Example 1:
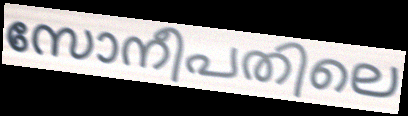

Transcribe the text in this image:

സോനീപതിലെ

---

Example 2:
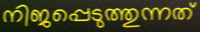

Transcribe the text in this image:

നിജപ്പെടുത്തുന്നത്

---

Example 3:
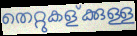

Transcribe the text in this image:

തെറ്റുകള്ക്കുള്ള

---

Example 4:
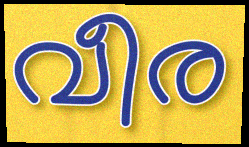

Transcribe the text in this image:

വീര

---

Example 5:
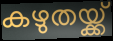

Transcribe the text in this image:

കഴുതയ്ക്ക്